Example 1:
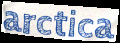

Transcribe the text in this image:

arctica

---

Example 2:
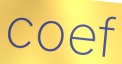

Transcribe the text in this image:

coef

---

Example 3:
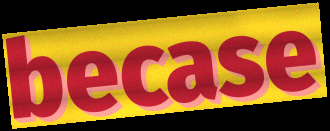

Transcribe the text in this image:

becase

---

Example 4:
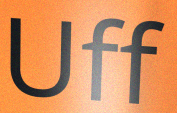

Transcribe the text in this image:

Uff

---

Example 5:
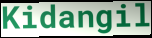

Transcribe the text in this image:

Kidangil